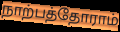
நாற்பத்தோராம்